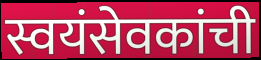
स्वयंसेवकांची